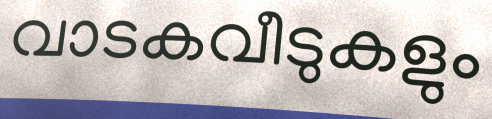
വാടകവീടുകളും